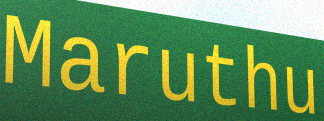
Maruthu